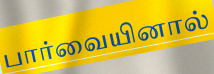
பார்வையினால்